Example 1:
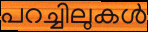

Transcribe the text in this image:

പറച്ചിലുകൾ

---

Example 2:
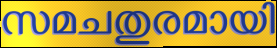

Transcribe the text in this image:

സമചതുരമായി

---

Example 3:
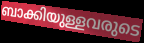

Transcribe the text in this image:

ബാക്കിയുള്ളവരുടെ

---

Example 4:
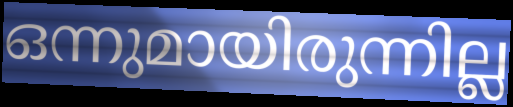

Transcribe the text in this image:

ഒന്നുമായിരുന്നില്ല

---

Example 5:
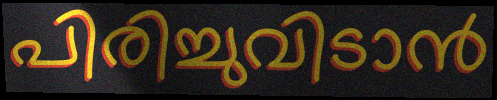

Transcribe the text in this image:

പിരിച്ചുവിടാൻ